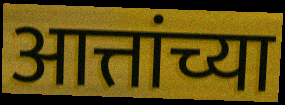
आत्तांच्या